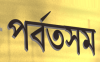
পর্বতসম